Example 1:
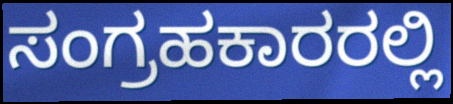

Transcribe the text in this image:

ಸಂಗ್ರಹಕಾರರಲ್ಲಿ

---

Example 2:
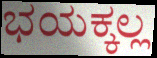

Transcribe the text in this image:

ಭಯಕ್ಕಲ್ಲ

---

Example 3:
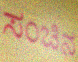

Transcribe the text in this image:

ಸಂಚಿನ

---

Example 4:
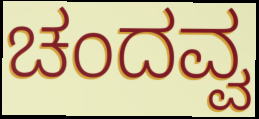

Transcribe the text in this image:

ಚಂದವ್ವ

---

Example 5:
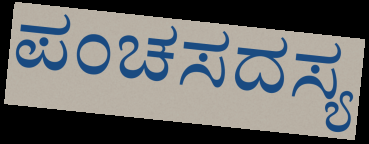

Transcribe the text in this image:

ಪಂಚಸದಸ್ಯ